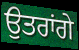
ਉਤਰਾਂਗੇ